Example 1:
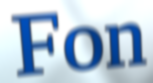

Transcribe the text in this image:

Fon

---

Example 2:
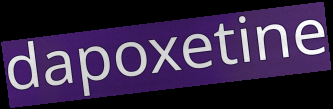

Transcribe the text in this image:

dapoxetine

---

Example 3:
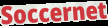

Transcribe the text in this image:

Soccernet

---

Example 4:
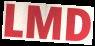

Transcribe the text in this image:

LMD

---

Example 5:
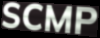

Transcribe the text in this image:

SCMP